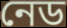
নেড